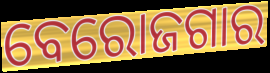
ବେରୋଜଗାର